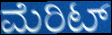
ಮೆರಿಟ್